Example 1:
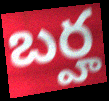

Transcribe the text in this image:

బర్హ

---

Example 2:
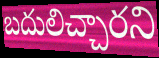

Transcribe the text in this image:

బదులిచ్చారని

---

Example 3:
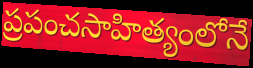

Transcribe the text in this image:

ప్రపంచసాహిత్యంలోనే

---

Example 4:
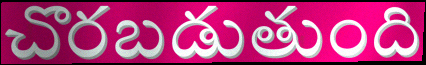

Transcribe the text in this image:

చొరబడుతుంది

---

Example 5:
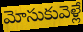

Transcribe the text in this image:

మోసుకువెళ్లే